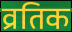
व्रतिक